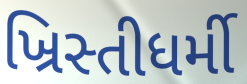
ખ્રિસ્તીધર્મી